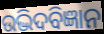
ଉଦ୍ଭିଦବିଜ୍ଞାନ